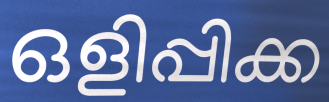
ഒളിപ്പിക്ക